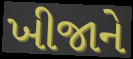
ખીજાને